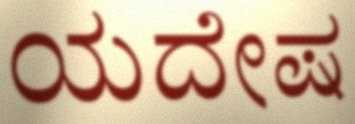
ಯದೇಷ